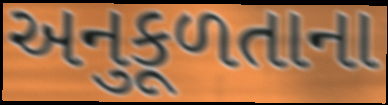
અનુકૂળતાના